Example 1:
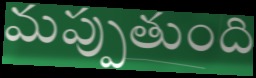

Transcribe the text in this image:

మప్పుతుంది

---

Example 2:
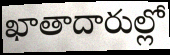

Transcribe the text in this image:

ఖాతాదారుల్లో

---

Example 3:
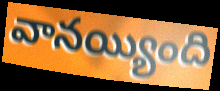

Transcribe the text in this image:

వానయ్యింది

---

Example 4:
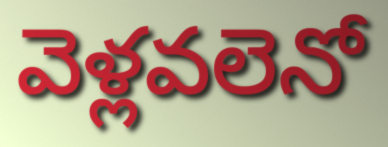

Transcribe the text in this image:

వెళ్లవలెనో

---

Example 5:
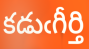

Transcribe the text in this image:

కడుఁగీర్తి